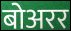
बोअरर